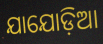
ଯାଯୋଡ଼ିଆ